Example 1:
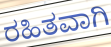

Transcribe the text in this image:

ರಹಿತವಾಗಿ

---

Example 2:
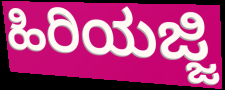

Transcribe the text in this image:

ಹಿರಿಯಜ್ಜಿ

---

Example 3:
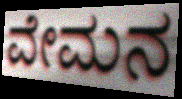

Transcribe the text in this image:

ವೇಮನ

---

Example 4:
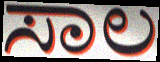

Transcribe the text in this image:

ಸಾಲ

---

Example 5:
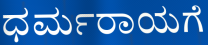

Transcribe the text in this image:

ಧರ್ಮರಾಯಗೆ